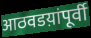
आठवडय़ांपूर्वी